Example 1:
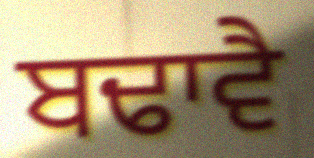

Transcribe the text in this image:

ਬਢਾਵੈ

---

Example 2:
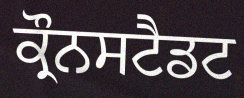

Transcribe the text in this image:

ਕ੍ਰੌਨਸਟੈਡਟ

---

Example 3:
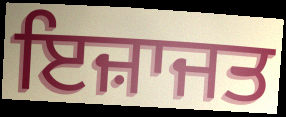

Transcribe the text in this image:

ਇਜ਼ਾਜਤ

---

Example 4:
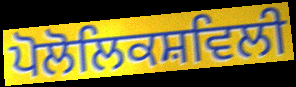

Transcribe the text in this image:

ਪੋਲੋਲਿਕਸ਼ਵਿਲੀ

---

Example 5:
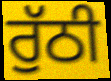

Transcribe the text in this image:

ਰੁੱਠੀ